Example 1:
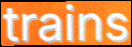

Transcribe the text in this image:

trains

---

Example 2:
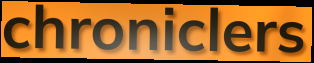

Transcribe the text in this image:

chroniclers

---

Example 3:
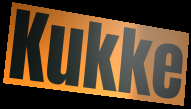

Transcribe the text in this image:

Kukke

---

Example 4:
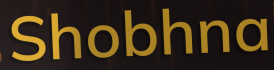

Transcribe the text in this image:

Shobhna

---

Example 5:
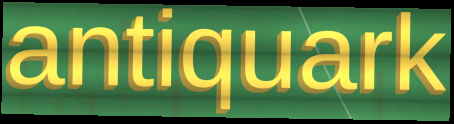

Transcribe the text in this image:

antiquark